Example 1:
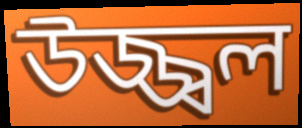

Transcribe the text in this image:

উজ্জ্বল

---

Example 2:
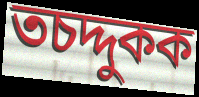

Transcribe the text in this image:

তচদ্দুকক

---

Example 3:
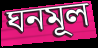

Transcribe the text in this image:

ঘনমূল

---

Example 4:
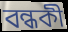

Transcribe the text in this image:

বন্ধকী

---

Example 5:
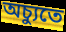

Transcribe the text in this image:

অচ্যুতে